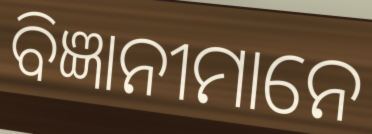
ବିଜ୍ଞାନୀମାନେ